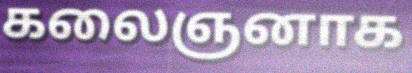
கலைஞனாக